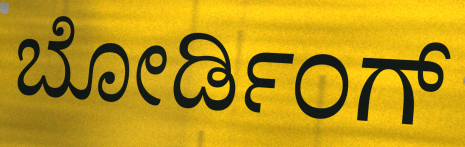
ಬೋರ್ಡಿಂಗ್